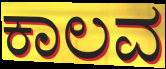
ಕಾಲವ